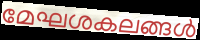
മേഘശകലങ്ങൾ